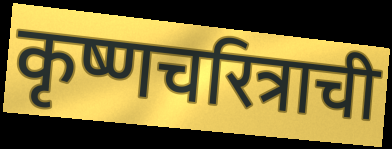
कृष्णचरित्राची